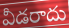
వీడరాదు